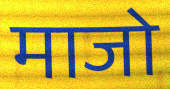
माजो